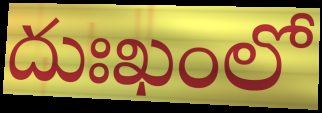
దుఃఖంలో